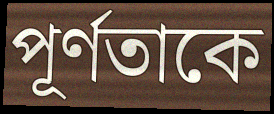
পূর্ণতাকে